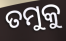
ତମୁକୁ